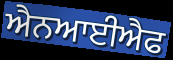
ਐਨਆਈਐਫ